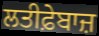
ਲਤੀਫ਼ੇਬਾਜ਼